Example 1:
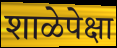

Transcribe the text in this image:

शाळेपेक्षा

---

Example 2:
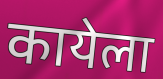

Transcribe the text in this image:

कायेला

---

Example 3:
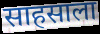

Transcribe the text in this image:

साहसाला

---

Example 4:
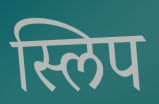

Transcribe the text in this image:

स्लिप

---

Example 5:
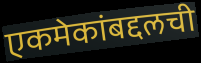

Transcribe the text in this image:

एकमेकांबद्दलची